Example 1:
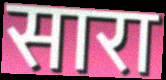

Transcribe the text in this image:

सारा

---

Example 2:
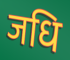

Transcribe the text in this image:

जधि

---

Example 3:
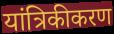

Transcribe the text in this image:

यांत्रिकीकरण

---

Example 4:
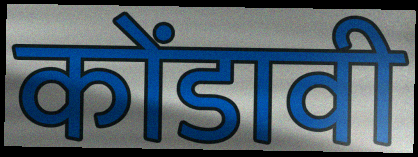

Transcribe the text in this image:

कोंडावी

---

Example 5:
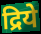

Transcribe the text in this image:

द्रिये